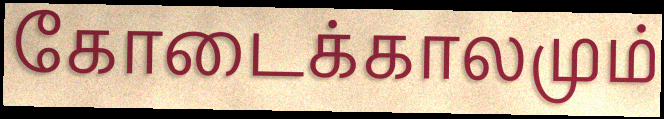
கோடைக்காலமும்